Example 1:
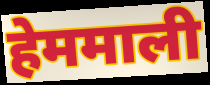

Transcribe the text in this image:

हेममाली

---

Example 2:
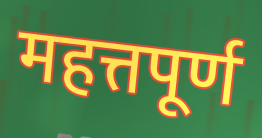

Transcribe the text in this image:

महत्तपूर्ण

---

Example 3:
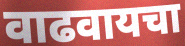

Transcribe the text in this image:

वाढवायचा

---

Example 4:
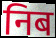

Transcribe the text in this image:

निब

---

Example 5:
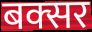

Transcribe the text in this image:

बक्‍सर